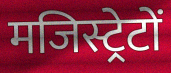
मजिस्ट्रेटों